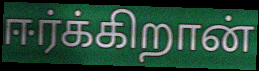
ஈர்க்கிறான்